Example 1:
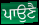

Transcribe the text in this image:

ਪਾਉਣੈ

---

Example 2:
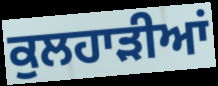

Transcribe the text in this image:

ਕੁਲਹਾੜੀਆਂ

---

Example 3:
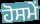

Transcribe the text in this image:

ਹੋਸਮੇਂ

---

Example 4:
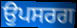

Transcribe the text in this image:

ਉਪਸਰਗ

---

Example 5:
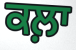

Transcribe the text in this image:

ਕਲ਼ਾ